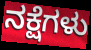
ನಕ್ಷೆಗಳು